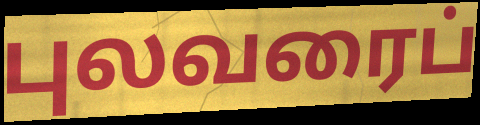
புலவரைப்